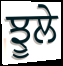
ਝੂਲੇ